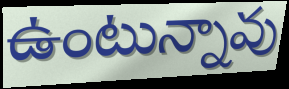
ఉంటున్నావు